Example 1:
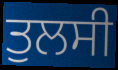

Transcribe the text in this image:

ਤੁਲਸੀ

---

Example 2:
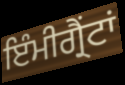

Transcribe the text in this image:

ਇੰਮੀਗ੍ਰੈਂਟਾਂ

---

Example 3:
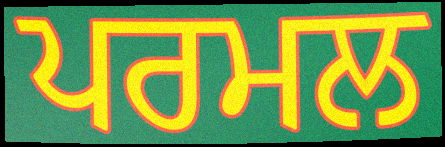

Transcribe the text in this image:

ਪਰਮਲ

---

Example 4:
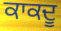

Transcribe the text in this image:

ਕਾਕਦੂ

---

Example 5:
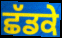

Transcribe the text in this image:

ਛੱਡਕੇ